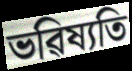
ভৱিষ্যতি